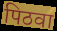
पिठवा